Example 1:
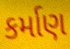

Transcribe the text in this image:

કર્માણ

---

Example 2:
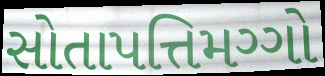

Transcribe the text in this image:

સોતાપત્તિમગ્ગો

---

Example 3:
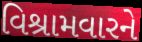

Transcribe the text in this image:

વિશ્રામવારને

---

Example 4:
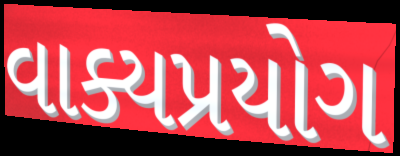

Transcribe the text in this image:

વાક્યપ્રયોગ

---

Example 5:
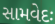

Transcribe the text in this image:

સામવેદઃ